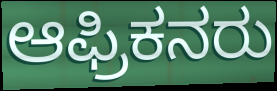
ಆಫ್ರಿಕನರು